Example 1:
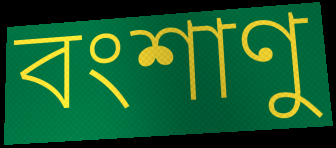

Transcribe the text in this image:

বংশাণু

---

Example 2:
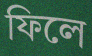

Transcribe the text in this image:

ফিলে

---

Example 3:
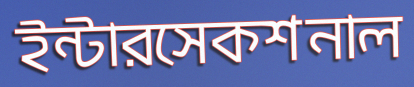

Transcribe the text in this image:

ইন্টারসেকশনাল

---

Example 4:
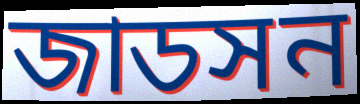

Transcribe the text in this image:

জাডসন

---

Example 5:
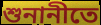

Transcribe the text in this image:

শুনানীতে